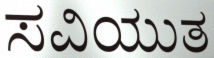
ಸವಿಯುತ